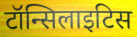
टॉन्सिलाइटिस